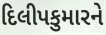
દિલીપકુમારને